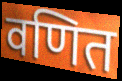
वणित